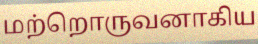
மற்றொருவனாகிய